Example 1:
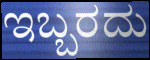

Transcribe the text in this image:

ಇಬ್ಬರದು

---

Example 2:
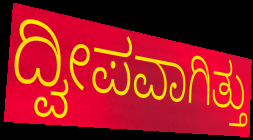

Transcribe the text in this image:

ದ್ವೀಪವಾಗಿತ್ತು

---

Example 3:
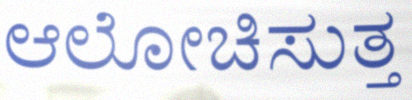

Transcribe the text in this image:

ಆಲೋಚಿಸುತ್ತ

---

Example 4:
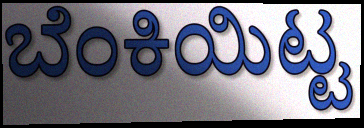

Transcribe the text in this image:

ಬೆಂಕಿಯಿಟ್ಟ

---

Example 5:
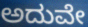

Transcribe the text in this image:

ಅದುವೇ